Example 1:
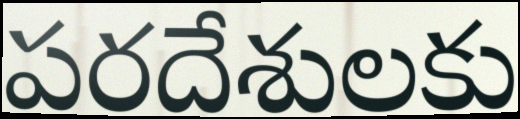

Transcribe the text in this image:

పరదేశులకు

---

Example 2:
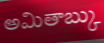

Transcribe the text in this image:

అమితాబ్కు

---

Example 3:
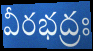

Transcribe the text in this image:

వీరభద్రః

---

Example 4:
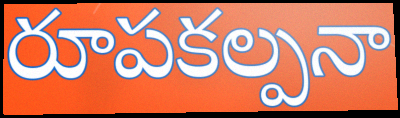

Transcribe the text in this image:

రూపకల్పనా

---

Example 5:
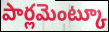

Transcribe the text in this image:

పార్లమెంట్కూ